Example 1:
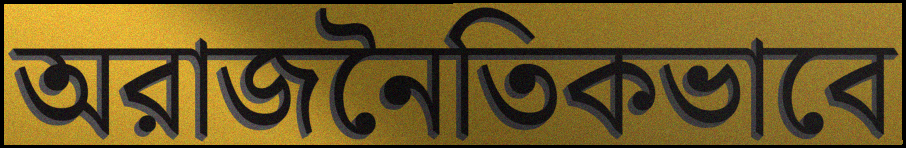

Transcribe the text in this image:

অরাজনৈতিকভাবে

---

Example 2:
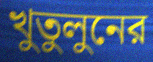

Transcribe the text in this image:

খুতুলুনের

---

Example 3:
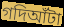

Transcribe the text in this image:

গদিআঁটা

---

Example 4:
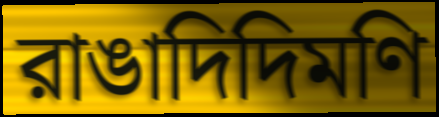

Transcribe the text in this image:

রাঙাদিদিমণি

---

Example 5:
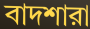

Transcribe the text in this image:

বাদশারা